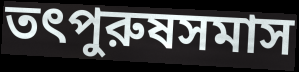
তৎপুরুষসমাস